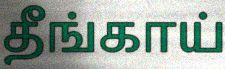
தீங்காய்